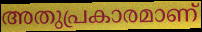
അതുപ്രകാരമാണ്